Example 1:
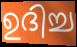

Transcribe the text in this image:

ഉദിച്ച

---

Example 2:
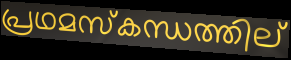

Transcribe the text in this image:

പ്രഥമസ്കന്ധത്തില്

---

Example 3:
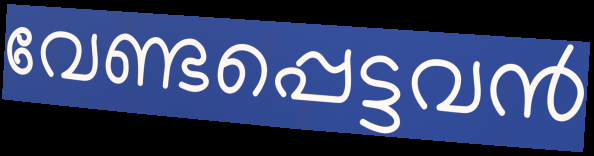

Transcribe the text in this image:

വേണ്ടപ്പെട്ടവൻ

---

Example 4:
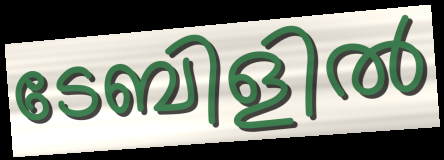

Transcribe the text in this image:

ടേബിളിൽ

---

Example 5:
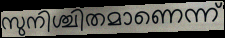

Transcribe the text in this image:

സുനിശ്ചിതമാണെന്ന്